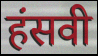
हंसवी